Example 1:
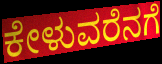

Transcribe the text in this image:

ಕೇಳುವರೆನಗೆ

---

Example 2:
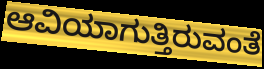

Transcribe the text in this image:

ಆವಿಯಾಗುತ್ತಿರುವಂತೆ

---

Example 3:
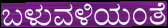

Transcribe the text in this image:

ಬಳುವಳಿಯಂತೆ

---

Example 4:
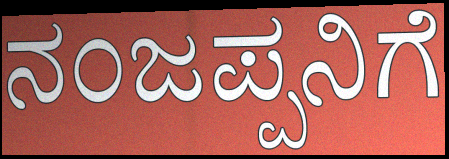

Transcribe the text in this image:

ನಂಜಪ್ಪನಿಗೆ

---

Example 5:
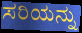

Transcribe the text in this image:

ಸರಿಯನ್ನು